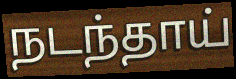
நடந்தாய்